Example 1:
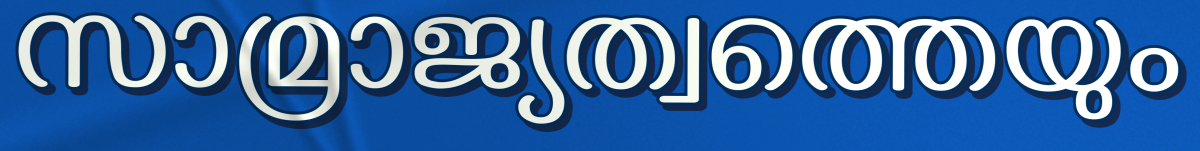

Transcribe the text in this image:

സാമ്രാജ്യത്വത്തെയും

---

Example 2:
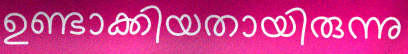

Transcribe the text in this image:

ഉണ്ടാക്കിയതായിരുന്നു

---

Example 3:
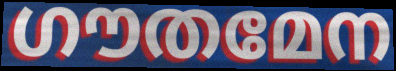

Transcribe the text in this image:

ഗൗതമേന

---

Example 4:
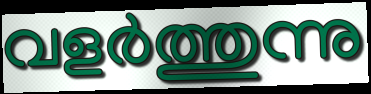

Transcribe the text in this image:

വളർത്തുന്നു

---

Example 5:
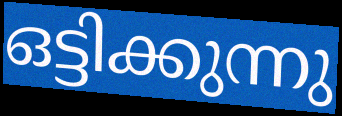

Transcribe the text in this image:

ഒട്ടിക്കുന്നു